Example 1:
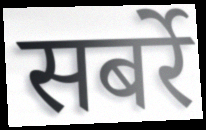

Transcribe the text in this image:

सबर्रे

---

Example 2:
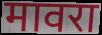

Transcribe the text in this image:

मावरा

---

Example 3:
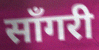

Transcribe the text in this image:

साँगरी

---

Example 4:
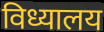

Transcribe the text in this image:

विध्यालय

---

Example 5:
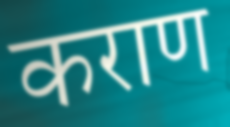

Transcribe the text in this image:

कराण